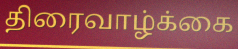
திரைவாழ்க்கை